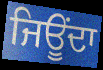
ਜਿਊੂਂਦਾ